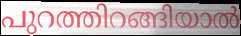
പുറത്തിറങ്ങിയാൽ